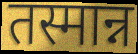
तस्मान्न